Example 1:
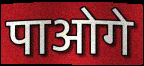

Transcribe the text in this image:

पाओगे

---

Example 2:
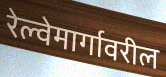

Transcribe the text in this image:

रेल्वेमार्गावरील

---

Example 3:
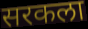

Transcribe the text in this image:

सरकला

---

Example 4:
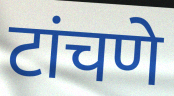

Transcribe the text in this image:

टांचणे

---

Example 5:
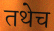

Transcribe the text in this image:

तथेच